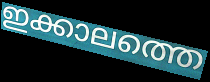
ഇക്കാലത്തെ